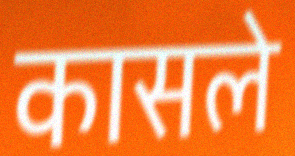
कासले